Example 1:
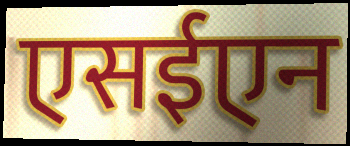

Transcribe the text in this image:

एसईएन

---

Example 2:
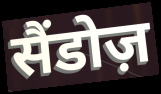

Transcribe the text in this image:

सैंडोज़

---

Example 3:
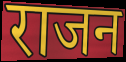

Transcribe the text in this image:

राजन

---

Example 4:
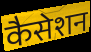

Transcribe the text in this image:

कैसेशन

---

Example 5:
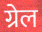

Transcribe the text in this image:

ग्रेल